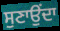
ਸੁਣਾਉਂਦਾ